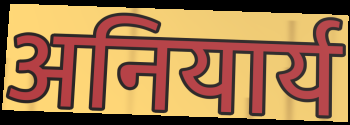
अनियार्य